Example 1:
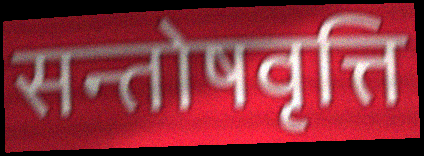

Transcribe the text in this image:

सन्तोषवृत्ति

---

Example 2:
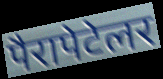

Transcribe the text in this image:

पैरापेटेलर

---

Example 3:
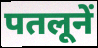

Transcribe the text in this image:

पतलूनें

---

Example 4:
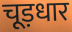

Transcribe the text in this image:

चूड़धार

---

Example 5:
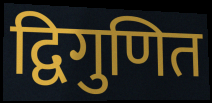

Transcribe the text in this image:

द्विगुणित